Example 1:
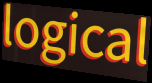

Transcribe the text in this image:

logical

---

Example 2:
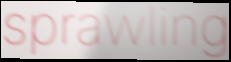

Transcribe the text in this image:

sprawling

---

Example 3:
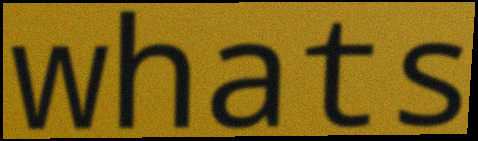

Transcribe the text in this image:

whats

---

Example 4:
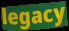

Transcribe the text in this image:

legacy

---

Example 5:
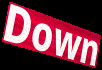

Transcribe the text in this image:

Down